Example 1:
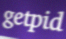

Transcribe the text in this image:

getpid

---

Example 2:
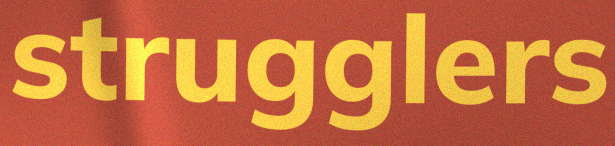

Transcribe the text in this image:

strugglers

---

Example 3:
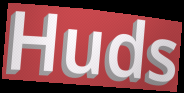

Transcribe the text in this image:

Huds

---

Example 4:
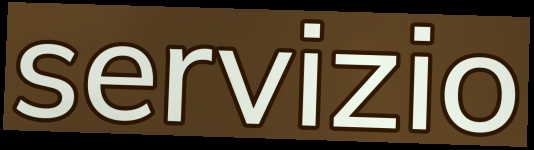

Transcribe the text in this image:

servizio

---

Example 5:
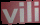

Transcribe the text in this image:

vili